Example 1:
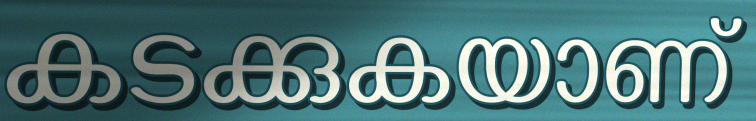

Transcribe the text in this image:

കടക്കുകയാണ്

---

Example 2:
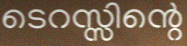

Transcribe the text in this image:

ടെറസ്സിന്റെ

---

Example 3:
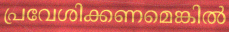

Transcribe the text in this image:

പ്രവേശിക്കണമെങ്കിൽ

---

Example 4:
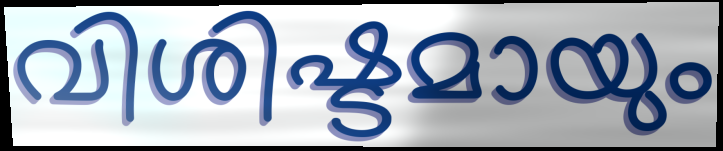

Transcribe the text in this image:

വിശിഷ്ടമായും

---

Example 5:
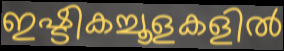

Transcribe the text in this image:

ഇഷ്ടികച്ചൂളകളിൽ